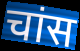
चांस